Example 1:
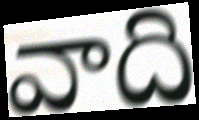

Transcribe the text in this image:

వాది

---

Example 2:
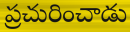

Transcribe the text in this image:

ప్రచురించాడు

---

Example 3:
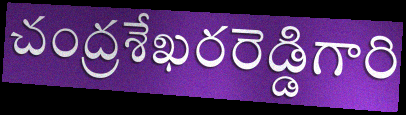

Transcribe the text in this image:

చంద్రశేఖరరెడ్డిగారి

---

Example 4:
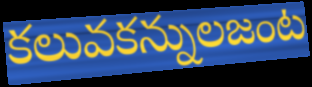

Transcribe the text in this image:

కలువకన్నులజంట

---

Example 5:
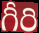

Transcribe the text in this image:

గీరి